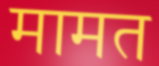
मामत